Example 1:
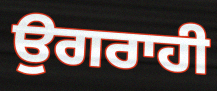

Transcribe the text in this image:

ਉਗਰਾਹੀ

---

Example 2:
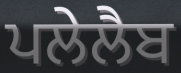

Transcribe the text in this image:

ਪਲੇਲੈਬ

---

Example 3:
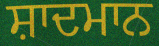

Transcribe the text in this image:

ਸ਼ਾਦਮਾਨ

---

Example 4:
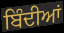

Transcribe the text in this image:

ਬਿੰਦੀਆਂ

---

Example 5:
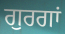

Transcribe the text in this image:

ਗੁਰਗਾਂ